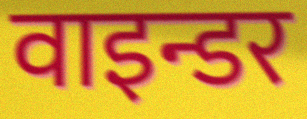
वाइन्डर